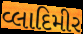
વ્લાદિમીર